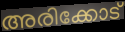
അരിക്കോട്